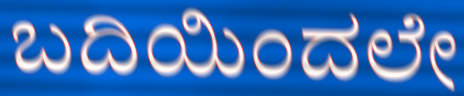
ಬದಿಯಿಂದಲೇ